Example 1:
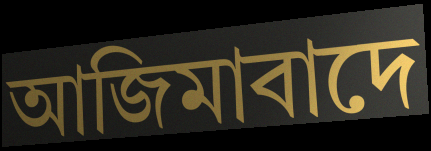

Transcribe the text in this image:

আজিমাবাদে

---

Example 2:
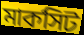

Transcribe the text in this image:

মার্কসিট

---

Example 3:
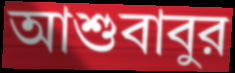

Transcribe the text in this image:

আশুবাবুর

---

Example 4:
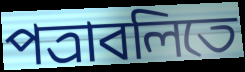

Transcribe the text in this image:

পত্রাবলিতে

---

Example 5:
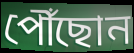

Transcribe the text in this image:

পৌঁছোন